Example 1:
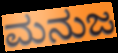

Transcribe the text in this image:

ಮನುಜ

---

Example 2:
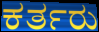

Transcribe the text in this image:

ಕರ್ತರು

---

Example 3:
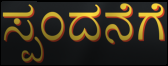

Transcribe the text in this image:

ಸ್ಪಂದನೆಗೆ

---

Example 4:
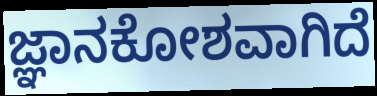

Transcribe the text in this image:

ಜ್ಞಾನಕೋಶವಾಗಿದೆ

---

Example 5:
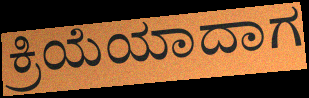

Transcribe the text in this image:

ಕ್ರಿಯೆಯಾದಾಗ